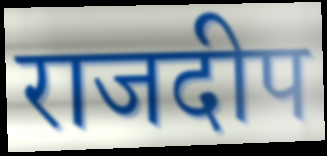
राजदीप